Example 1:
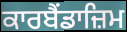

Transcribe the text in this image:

ਕਾਰਬੈਂਡਾਜ਼ਿਮ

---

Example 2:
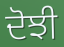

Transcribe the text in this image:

ਦੋਝੀ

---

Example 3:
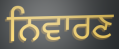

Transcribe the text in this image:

ਨਿਵਾਰਣ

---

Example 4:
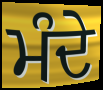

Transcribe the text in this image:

ਮੰਦੇ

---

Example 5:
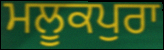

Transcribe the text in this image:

ਮਲੂਕਪੁਰਾ